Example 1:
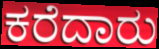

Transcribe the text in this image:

ಕರೆದಾರು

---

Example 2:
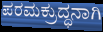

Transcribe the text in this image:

ಪರಮಕ್ರುದ್ಧನಾಗಿ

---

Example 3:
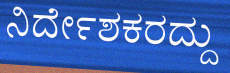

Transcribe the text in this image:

ನಿರ್ದೇಶಕರದ್ದು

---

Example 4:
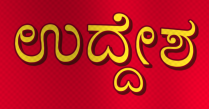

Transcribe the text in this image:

ಉದ್ದೇಶ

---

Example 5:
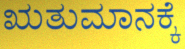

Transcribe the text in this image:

ಋತುಮಾನಕ್ಕೆ